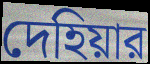
দেহিয়ার